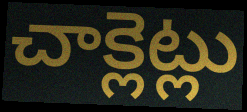
చాక్లెట్లు